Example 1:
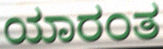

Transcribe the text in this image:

ಯಾರಂತ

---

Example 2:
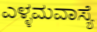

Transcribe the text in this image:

ಎಳ್ಳಮವಾಸ್ಯೆ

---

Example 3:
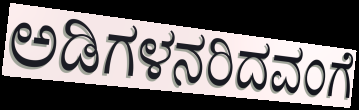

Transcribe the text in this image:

ಅಡಿಗಳನರಿದವಂಗೆ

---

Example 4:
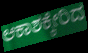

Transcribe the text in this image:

ಆಕಾಶಕ್ಕೇರಿದ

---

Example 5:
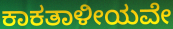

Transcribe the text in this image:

ಕಾಕತಾಳೀಯವೇ